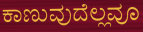
ಕಾಣುವುದೆಲ್ಲವೂ